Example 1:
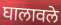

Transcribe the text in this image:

घालावले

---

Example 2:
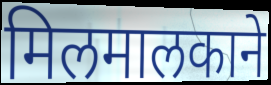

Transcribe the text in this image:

मिलमालकाने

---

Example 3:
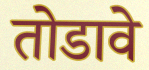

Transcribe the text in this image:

तोडावे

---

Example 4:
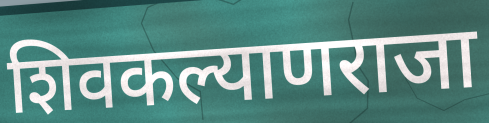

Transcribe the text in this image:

शिवकल्याणराजा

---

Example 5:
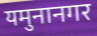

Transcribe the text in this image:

यमुनानगर